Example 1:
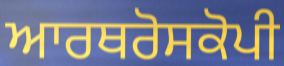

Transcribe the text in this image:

ਆਰਥਰੋਸਕੋਪੀ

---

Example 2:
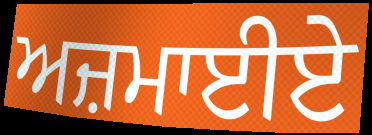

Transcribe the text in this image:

ਅਜ਼ਮਾਈਏ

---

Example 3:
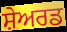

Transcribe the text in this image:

ਸ਼ੇਅਰਡ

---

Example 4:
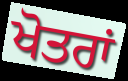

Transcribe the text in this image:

ਖੋਤਰਾਂ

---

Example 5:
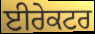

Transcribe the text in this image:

ਈਰੇਕਟਰ